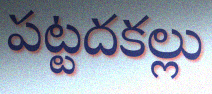
పట్టదకల్లు